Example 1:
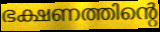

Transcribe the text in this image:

ഭക്ഷണത്തിന്റെ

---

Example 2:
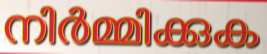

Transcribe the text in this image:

നിർമ്മിക്കുക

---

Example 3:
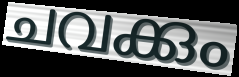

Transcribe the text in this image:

ചവക്കും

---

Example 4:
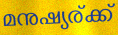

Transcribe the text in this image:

മനുഷ്യര്ക്ക്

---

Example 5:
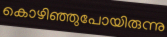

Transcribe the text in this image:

കൊഴിഞ്ഞുപോയിരുന്നു